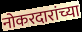
नोकरदारांच्या